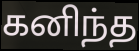
கனிந்த